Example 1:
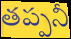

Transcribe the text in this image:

తప్పనీ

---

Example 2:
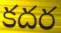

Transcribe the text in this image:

కదర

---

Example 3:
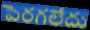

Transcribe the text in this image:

పెరగలేదు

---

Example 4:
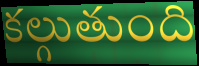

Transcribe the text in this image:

కల్గుతుంది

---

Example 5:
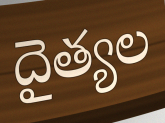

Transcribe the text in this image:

దైత్యల